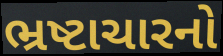
ભ્રષ્ટાચારનો